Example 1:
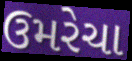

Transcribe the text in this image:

ઉમરેચા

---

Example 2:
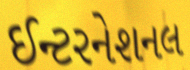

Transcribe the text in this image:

ઈન્ટરનેશનલ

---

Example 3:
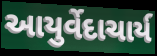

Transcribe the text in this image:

આયુર્વેદાચાર્ય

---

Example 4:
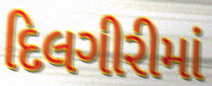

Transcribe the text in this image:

દિલગીરીમાં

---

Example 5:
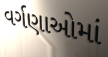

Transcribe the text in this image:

વર્ગણાઓમાં